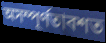
অসম্পূর্ণতাবশত